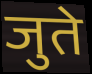
जुते